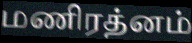
மணிரத்னம்